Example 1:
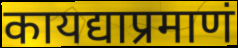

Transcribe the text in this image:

कायद्याप्रमाणं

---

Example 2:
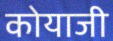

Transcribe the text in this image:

कोयाजी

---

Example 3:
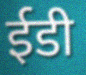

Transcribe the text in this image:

ईडी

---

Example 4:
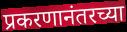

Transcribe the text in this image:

प्रकरणानंतरच्या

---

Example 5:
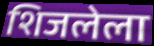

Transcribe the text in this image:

शिजलेला